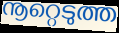
നൂറ്റെടുത്ത